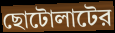
ছোটোলাটের